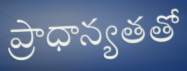
ప్రాధాన్యతతో